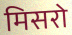
मिसरो